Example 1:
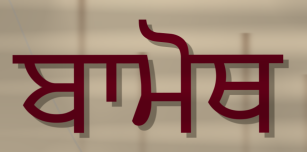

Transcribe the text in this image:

ਬਾਮੋਥ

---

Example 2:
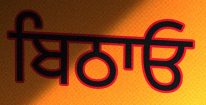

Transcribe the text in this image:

ਬਿਠਾਓ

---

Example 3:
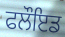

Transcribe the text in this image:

ਫਲੌਇਡ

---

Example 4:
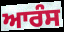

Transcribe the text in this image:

ਆਰੰਸ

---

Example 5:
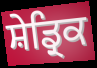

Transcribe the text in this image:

ਸ਼ੇਡ੍ਰਿਕ